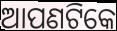
ଆପଣଟିକେ